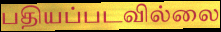
பதியப்படவில்லை